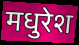
मधुरेश